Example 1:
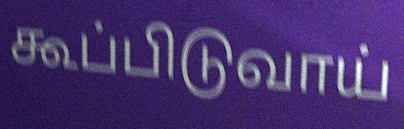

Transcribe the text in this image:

கூப்பிடுவாய்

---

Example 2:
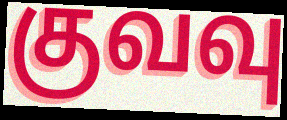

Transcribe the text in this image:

குவவு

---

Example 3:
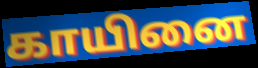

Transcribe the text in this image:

காயினை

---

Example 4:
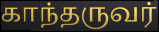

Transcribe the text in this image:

காந்தருவர்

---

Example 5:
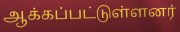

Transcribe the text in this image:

ஆக்கப்பட்டுள்ளனர்